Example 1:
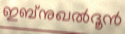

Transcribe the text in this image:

ഇബ്നുഖൽദൂൻ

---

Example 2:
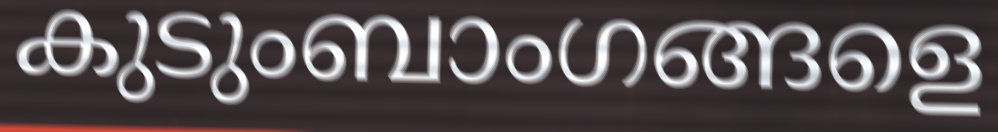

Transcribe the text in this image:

കുടുംബാംഗങ്ങളെ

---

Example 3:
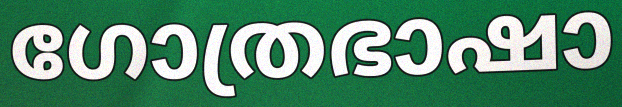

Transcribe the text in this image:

ഗോത്രഭാഷാ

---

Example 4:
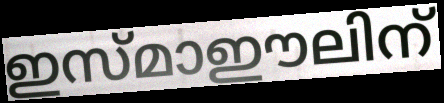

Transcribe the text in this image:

ഇസ്മാഈലിന്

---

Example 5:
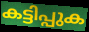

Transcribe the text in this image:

കട്ടിപ്പുക